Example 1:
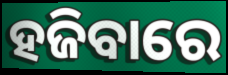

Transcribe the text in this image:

ହଜିବାରେ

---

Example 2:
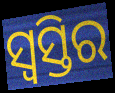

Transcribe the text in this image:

ସ୍ଵସ୍ତିର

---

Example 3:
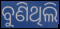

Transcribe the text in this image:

ବୁଣିଥିଲି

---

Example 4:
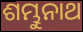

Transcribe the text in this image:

ଶମ୍ଭୁନାଥ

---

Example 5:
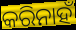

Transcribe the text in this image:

କରିନାହଁ